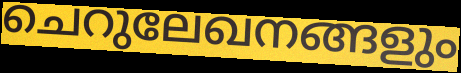
ചെറുലേഖനങ്ങളും